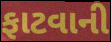
ફાટવાની